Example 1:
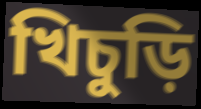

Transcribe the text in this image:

খিচুড়ি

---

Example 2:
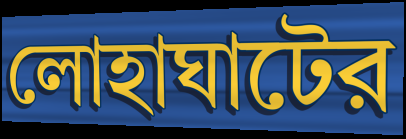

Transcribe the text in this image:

লোহাঘাটের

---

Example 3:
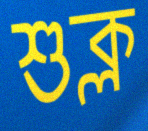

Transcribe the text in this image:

শুক্ল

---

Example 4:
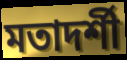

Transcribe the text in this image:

মতাদর্শী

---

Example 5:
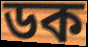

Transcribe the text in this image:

ডক